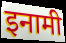
इनामी